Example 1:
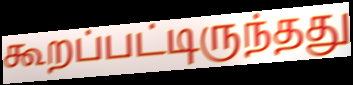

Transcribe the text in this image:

கூறப்பட்டிருந்தது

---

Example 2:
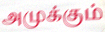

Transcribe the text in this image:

அமுக்கும்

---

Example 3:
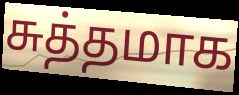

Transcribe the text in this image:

சுத்தமாக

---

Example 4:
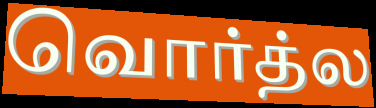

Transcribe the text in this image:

வொர்த்ல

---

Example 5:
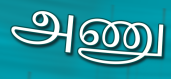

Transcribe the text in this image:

அணு